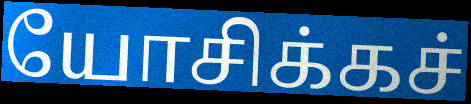
யோசிக்கச்